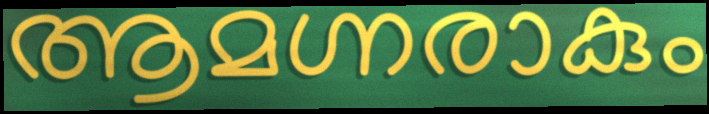
ആമഗ്നരാകും